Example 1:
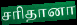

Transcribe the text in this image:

சரிதானா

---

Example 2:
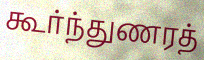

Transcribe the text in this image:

கூர்ந்துணரத்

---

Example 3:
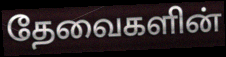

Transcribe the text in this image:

தேவைகளின்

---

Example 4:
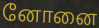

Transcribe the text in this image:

னோனை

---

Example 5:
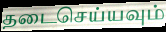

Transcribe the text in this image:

தடைசெய்யவும்